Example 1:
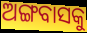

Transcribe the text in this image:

ଅଙ୍ଗବାସକୁ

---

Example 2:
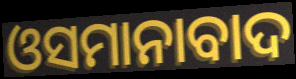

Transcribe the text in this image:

ଓସମାନାବାଦ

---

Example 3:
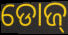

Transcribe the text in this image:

ଡୋଜ୍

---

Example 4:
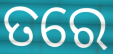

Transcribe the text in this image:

ତରେ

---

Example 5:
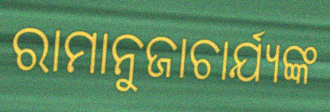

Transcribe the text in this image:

ରାମାନୁଜାଚାର୍ଯ୍ୟଙ୍କ